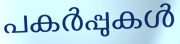
പകർപ്പുകൾ